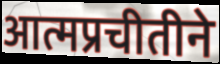
आत्मप्रचीतीने